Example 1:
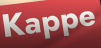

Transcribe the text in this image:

Kappe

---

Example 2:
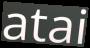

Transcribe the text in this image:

atai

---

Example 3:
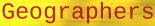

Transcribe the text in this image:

Geographers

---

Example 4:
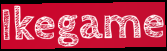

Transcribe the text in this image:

Ikegame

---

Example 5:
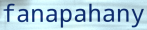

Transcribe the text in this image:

fanapahany